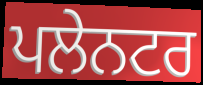
ਪਲੇਨਟਰ